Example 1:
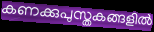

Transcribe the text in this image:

കണക്കുപുസ്തകങ്ങളിൽ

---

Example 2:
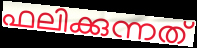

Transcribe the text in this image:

ഫലിക്കുന്നത്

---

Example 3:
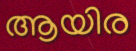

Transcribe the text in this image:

ആയിര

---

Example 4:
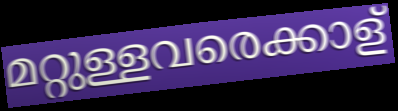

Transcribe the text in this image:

മറ്റുള്ളവരെക്കാള്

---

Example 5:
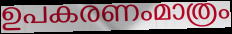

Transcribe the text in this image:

ഉപകരണംമാത്രം